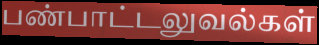
பண்பாட்டலுவல்கள்